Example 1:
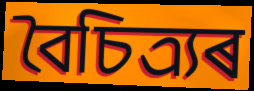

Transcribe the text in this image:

বৈচিত্ৰ্যৰ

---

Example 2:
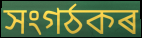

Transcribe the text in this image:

সংগঠকৰ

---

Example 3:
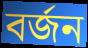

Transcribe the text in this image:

বৰ্জন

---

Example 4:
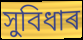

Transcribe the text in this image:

সুবিধাৰ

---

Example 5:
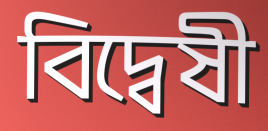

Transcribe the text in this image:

বিদ্বেষী